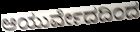
ಆಯುರ್ವೇದದಿಂದ